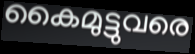
കൈമുട്ടുവരെ